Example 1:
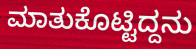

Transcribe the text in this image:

ಮಾತುಕೊಟ್ಟಿದ್ದನು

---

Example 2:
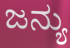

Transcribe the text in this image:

ಜನ್ಯು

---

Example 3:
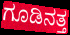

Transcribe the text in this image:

ಗೂಡಿನತ್ತ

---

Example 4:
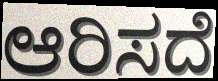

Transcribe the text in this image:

ಆರಿಸದೆ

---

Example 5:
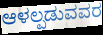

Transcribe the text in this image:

ಆಳಲ್ಪಡುವವರ